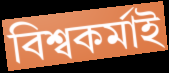
বিশ্বকৰ্মাই